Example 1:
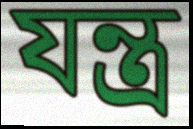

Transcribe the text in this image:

যন্ত্ৰ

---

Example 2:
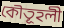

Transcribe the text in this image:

কৌতূহলী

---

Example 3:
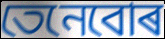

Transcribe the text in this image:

তেনেবোৰ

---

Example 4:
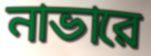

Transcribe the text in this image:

নাভাৱে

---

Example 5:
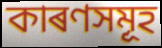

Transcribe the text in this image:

কাৰণসমূহ